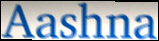
Aashna